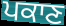
ਪਕਾਣ